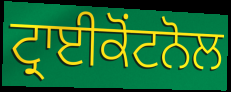
ਟ੍ਰਾਈਕੋਂਟਨੋਲ